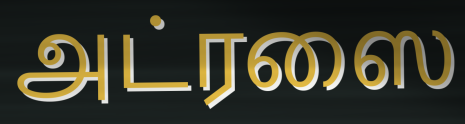
அட்ரஸை